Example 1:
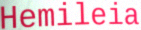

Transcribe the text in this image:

Hemileia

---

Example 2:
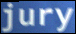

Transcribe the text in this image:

jury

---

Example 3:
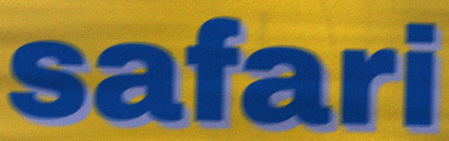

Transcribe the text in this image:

safari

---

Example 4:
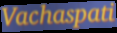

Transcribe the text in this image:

Vachaspati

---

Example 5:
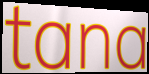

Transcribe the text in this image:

tana